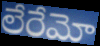
లేరేమో